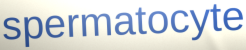
spermatocyte